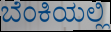
ಬೆಂಕಿಯಲ್ಲಿ